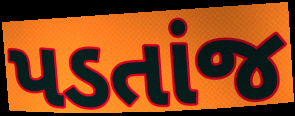
પડતાંજ